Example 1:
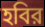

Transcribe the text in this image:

হবির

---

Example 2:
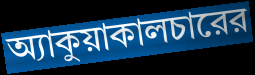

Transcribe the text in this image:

অ্যাকুয়াকালচারের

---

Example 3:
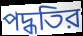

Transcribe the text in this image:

পদ্ধতির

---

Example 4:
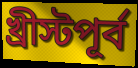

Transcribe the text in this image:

খ্রীস্টপূর্ব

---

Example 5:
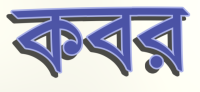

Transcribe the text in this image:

কবর